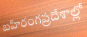
బహిరంగప్రదేశాల్లో